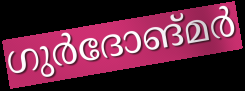
ഗുർദോങ്മർ